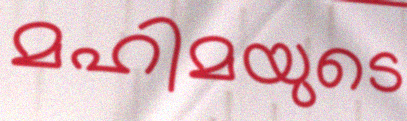
മഹിമയുടെ